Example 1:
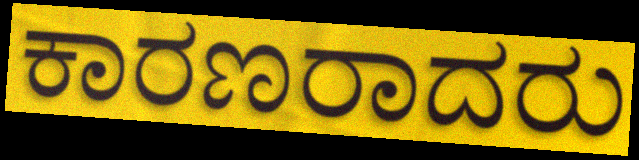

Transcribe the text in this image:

ಕಾರಣರಾದರು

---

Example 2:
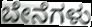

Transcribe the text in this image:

ಬೇನೆಗಳು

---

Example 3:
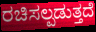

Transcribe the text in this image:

ರಚಿಸಲ್ಪಡುತ್ತದೆ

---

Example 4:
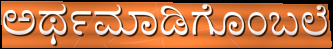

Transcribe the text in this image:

ಅರ್ಥಮಾಡಿಗೊಂಬಲೆ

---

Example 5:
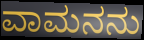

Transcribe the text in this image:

ವಾಮನನು